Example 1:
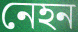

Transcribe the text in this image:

নেহন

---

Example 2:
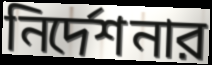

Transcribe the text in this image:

নির্দেশনার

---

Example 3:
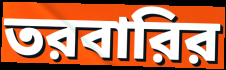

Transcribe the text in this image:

তরবারির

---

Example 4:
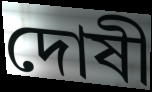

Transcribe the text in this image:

দোষী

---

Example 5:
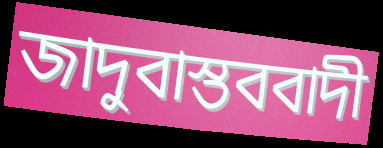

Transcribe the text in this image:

জাদুবাস্তববাদী